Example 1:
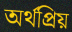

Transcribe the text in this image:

অর্থপ্রিয়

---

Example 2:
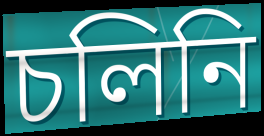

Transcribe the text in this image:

চলিনি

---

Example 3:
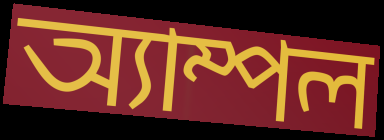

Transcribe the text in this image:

অ্যাম্পল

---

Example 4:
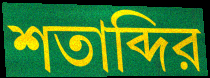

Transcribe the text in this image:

শতাব্দির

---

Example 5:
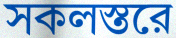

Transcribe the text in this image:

সকলস্তরে